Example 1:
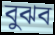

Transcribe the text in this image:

বুঝব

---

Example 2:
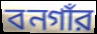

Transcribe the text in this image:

বনগাঁর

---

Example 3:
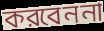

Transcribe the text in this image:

করবেননা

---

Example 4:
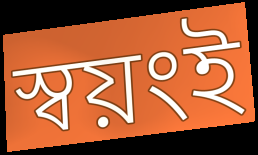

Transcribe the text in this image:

স্বয়ংই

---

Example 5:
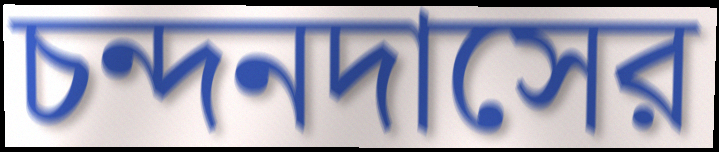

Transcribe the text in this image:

চন্দনদাসের